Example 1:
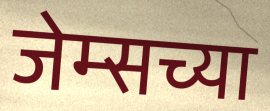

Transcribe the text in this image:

जेम्सच्या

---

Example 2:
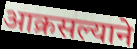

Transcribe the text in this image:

आक्रसल्याने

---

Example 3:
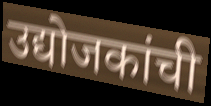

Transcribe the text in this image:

उद्योजकांची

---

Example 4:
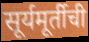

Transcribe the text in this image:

सूर्यमूर्तीची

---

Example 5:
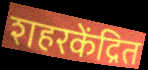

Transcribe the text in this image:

शहरकेंद्रित